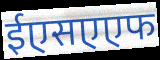
ईएसएएफ